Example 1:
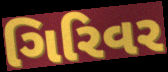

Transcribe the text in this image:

ગિરિવર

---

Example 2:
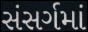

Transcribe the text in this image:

સંસર્ગમાં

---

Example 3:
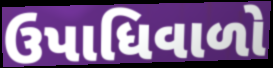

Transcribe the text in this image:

ઉપાધિવાળો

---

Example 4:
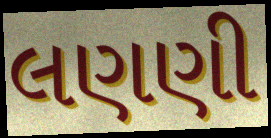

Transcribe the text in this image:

લણણી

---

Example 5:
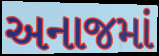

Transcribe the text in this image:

અનાજમાં